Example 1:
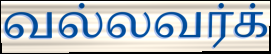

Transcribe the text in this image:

வல்லவர்க்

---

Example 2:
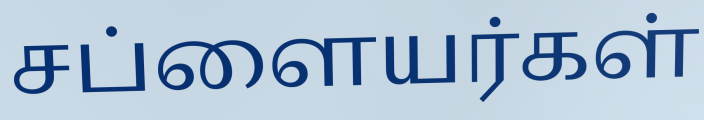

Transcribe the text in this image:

சப்ளையர்கள்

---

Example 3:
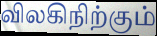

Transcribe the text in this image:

விலகிநிற்கும்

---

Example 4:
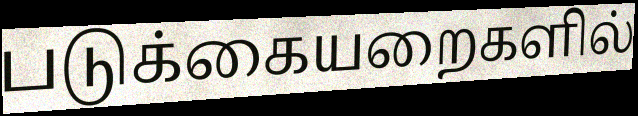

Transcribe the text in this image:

படுக்கையறைகளில்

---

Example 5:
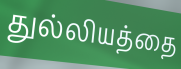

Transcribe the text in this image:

துல்லியத்தை